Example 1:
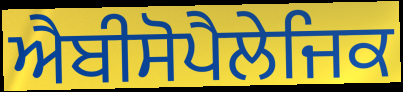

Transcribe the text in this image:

ਐਬੀਸੋਪੈਲੇਜਿਕ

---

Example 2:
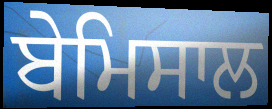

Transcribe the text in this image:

ਬੇਮਿਸਾਲ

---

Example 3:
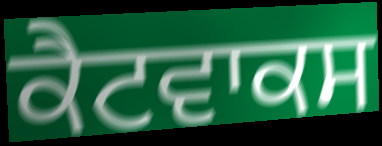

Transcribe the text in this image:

ਕੈਟਵਾਕਸ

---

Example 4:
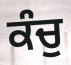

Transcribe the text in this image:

ਕੰਚੁ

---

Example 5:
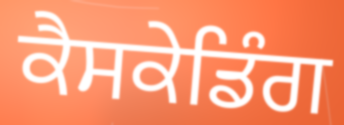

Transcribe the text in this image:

ਕੈਸਕੇਡਿੰਗ